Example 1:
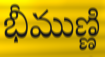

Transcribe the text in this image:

భీముణ్ణి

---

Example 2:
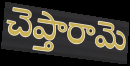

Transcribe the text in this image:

చెప్తారామె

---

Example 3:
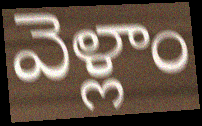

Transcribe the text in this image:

వెళ్లాం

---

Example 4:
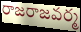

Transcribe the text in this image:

రాజరాజవర్మ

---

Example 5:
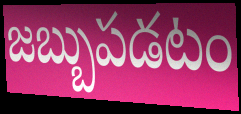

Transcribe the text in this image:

జబ్బుపడటం